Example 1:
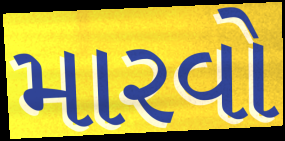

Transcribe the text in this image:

મારવો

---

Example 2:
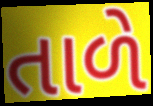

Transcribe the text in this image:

તાળે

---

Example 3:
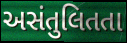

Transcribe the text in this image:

અસંતુલિતતા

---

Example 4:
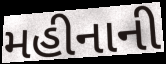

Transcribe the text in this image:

મહીનાની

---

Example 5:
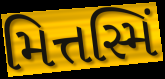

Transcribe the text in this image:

મિત્તસ્મિં